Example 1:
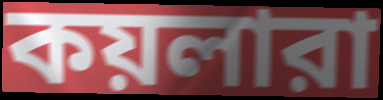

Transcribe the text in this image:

কয়লারা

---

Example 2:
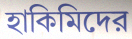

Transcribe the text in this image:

হাকিমিদের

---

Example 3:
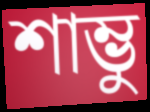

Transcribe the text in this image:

শাম্ভু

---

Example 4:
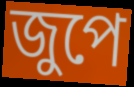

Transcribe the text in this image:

জুপে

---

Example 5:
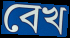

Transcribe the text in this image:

বেখ